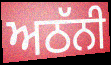
ਅਠੱਨੀ